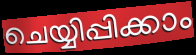
ചെയ്യിപ്പിക്കാം